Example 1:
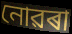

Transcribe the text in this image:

নোৱৰা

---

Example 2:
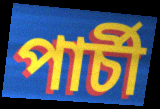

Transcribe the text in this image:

পাৰ্চী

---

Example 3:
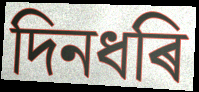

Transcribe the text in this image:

দিনধৰি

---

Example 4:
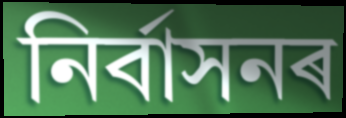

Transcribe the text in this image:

নিৰ্বাসনৰ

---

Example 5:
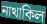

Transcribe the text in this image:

নাথাকিল